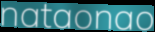
nataonao